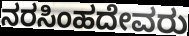
ನರಸಿಂಹದೇವರು